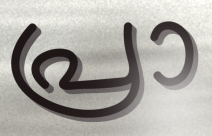
പ്രാ